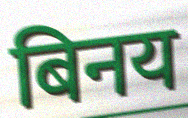
बिनय